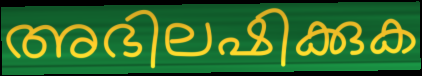
അഭിലഷിക്കുക